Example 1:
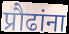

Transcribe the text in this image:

प्रौढांना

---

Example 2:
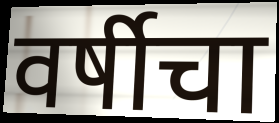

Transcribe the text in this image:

वर्षीचा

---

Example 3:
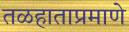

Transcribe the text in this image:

तळहाताप्रमाणे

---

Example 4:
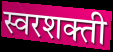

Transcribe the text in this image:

स्वरशक्ती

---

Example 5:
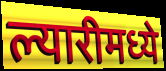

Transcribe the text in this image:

ल्यारीमध्ये